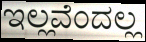
ಇಲ್ಲವೆಂದಲ್ಲ